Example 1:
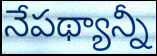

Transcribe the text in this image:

నేపథ్యాన్నీ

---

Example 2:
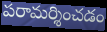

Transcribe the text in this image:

పరామర్శించడం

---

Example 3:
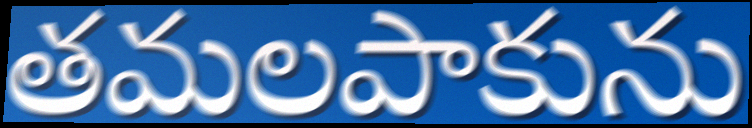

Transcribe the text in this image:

తమలపాకును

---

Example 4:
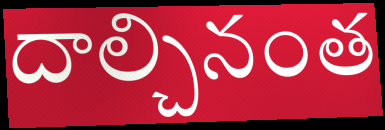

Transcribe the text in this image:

దాల్చినంత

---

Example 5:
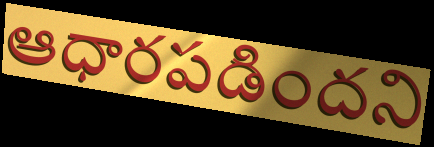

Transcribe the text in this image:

ఆధారపడిందని